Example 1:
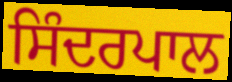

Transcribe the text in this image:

ਸਿੰਦਰਪਾਲ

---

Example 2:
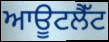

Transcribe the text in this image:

ਆਊਟਲੈੱਟ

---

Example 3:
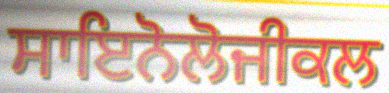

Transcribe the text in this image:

ਸਾਇਨੋਲੋਜੀਕਲ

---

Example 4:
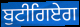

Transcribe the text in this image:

ਬੁਟੀਗਿਏਗ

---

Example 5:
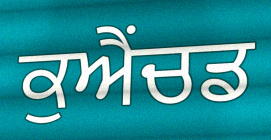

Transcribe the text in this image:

ਕੁਐਂਚਡ